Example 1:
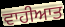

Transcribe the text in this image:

ਵਾਹੀਆਤ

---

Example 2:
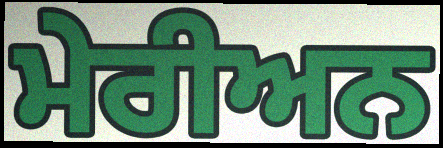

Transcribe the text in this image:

ਮੇਰੀਅਨ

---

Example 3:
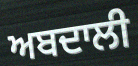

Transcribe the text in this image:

ਅਬਦਾਲੀ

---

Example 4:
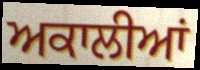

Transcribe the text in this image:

ਅਕਾਲੀਆਂ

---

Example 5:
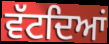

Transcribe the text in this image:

ਵੱਟਦਿਆਂ